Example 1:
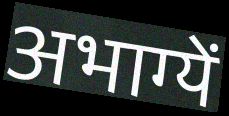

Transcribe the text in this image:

अभाग्यें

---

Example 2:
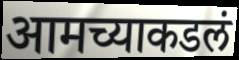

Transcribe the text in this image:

आमच्याकडलं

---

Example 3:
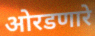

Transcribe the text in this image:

ओरडणारे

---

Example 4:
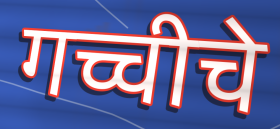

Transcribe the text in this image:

गच्चीचे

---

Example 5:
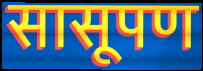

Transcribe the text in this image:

सासूपण